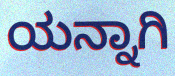
ಯನ್ನಾಗಿ